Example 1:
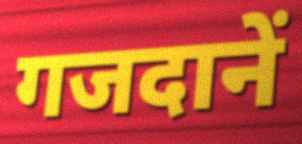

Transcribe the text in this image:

गजदानें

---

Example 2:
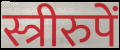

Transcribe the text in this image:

स्त्रीरुपें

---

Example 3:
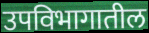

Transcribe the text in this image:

उपविभागातील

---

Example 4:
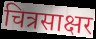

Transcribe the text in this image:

चित्रसाक्षर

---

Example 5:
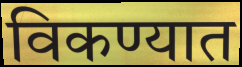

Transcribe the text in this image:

विकण्यात